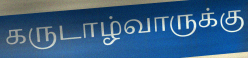
கருடாழ்வாருக்கு